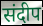
संदीप